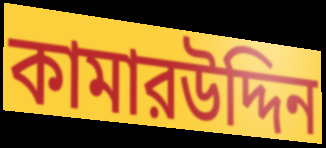
কামারউদ্দিন